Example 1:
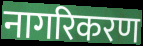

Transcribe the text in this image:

नागरिकरण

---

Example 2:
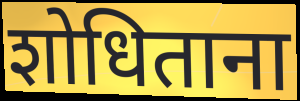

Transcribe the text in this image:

शोधिताना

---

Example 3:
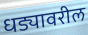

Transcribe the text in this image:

धड्यावरील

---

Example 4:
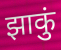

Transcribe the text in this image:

झाकुं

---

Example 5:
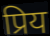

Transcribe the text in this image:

प्रिय